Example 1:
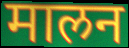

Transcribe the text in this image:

मालन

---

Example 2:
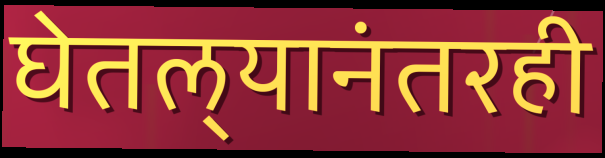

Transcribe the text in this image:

घेतल्यानंतरही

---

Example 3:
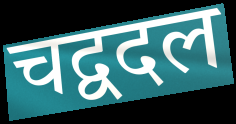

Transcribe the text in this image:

चद्वदल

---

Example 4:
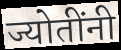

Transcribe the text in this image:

ज्योतींनी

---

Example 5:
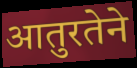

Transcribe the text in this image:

आतुरतेने